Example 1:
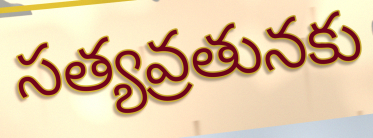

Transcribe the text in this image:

సత్యవ్రతునకు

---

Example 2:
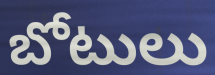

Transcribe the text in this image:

బోటులు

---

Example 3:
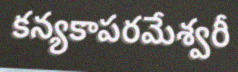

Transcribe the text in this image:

కన్యకాపరమేశ్వరీ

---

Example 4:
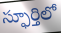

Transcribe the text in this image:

స్ఫూర్తిలో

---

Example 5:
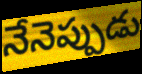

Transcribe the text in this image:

నేనెప్పుడు